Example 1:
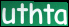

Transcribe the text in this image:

uthta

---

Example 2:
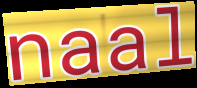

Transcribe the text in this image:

naal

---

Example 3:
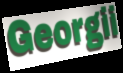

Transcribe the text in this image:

Georgii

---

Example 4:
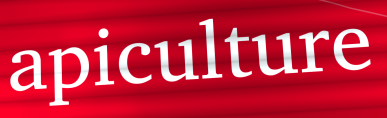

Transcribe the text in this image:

apiculture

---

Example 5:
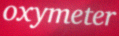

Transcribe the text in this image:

oxymeter